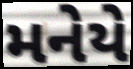
મનેયે